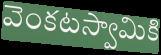
వెంకటస్వామికి